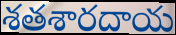
శతశారదాయ